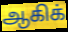
ஆகிக்